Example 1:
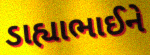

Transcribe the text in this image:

ડાહ્યાભાઈને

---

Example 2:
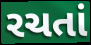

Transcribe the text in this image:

રચતાં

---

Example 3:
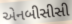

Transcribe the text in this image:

એનબીસીસી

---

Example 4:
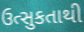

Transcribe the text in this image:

ઉત્સુકતાથી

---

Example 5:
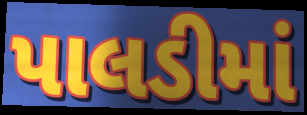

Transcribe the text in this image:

પાલડીમાં